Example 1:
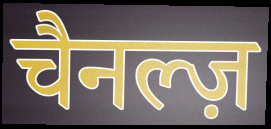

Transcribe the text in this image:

चैनल्ज़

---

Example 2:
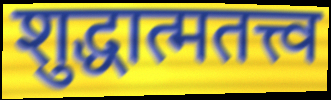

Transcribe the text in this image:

शुद्धात्मतत्त्व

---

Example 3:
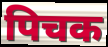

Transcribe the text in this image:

पिचक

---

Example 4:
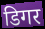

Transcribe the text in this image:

डिगर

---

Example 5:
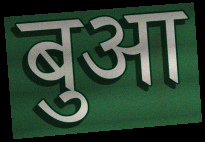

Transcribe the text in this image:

बुआ